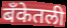
बँकेतली